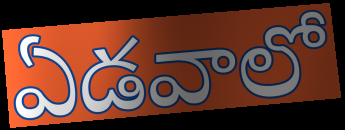
ఏడవాలో